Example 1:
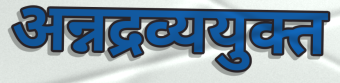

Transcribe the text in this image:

अन्नद्रव्ययुक्त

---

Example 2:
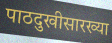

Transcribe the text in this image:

पाठदुखीसारख्या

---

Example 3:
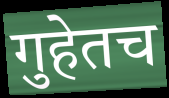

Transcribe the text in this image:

गुहेतच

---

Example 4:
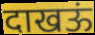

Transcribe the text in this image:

दाखऊं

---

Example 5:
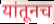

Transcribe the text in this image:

यांतूनच